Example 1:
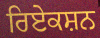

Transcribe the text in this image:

ਰਿਏਕਸ਼ਨ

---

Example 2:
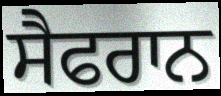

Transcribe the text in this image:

ਸੈਫਰਾਨ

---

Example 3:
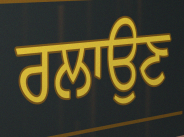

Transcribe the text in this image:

ਰਲਾਉਣ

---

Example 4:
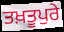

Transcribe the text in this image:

ਤਖ਼ਤੂਪੁਰੇ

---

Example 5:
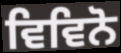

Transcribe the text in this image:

ਵਿਵਿਨੋ